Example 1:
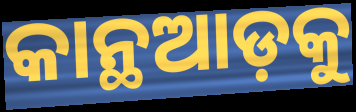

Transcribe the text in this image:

କାନ୍ଥଆଡ଼କୁ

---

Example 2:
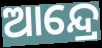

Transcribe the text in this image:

ଆନ୍ଦ୍ରେ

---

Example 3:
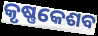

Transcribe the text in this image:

କୃଷ୍ଣକେଶବ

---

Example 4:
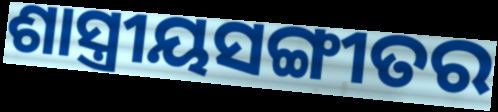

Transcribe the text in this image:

ଶାସ୍ତ୍ରୀୟସଙ୍ଗୀତର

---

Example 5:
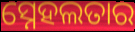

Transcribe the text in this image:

ସ୍ନେହଲତାର